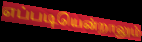
எப்படியென்றாலும்